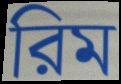
রিম